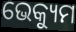
ଭେକ୍ୟୁମ